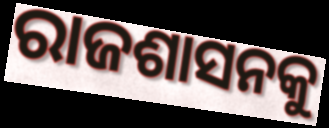
ରାଜଶାସନକୁ